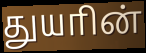
துயரின்